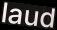
laud